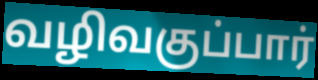
வழிவகுப்பார்